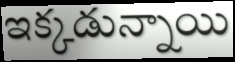
ఇక్కడున్నాయి